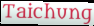
Taichung